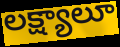
లక్ష్యాలూ